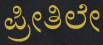
ಪ್ರೀತಿಲೇ